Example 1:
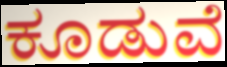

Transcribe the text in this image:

ಕೂಡುವೆ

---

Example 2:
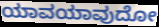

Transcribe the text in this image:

ಯಾವಯಾವುದೋ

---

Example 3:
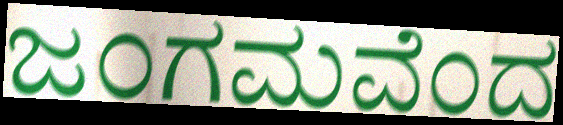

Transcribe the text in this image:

ಜಂಗಮವೆಂದ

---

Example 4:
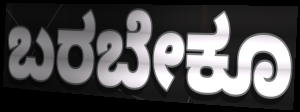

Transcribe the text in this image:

ಬರಬೇಕೂ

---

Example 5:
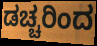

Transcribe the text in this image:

ಡಚ್ಚರಿಂದ